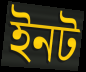
ইনট